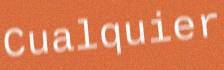
Cualquier